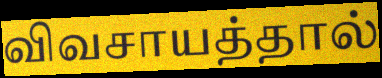
விவசாயத்தால்